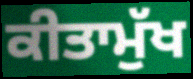
ਕੀਤਾਮੁੱਖ